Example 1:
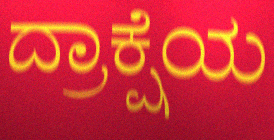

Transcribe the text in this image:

ದ್ರಾಕ್ಷೆಯ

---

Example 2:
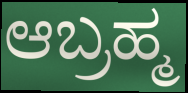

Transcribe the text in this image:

ಆಬ್ರಹ್ಮ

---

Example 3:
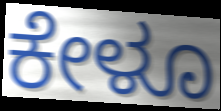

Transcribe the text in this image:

ಕೇಳೂ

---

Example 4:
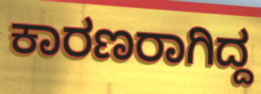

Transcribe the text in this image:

ಕಾರಣರಾಗಿದ್ದ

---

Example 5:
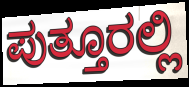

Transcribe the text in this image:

ಪುತ್ತೂರಲ್ಲಿ